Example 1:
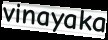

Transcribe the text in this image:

vinayaka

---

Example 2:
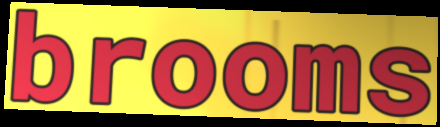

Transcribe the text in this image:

brooms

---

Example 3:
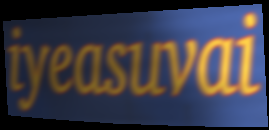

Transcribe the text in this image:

iyeasuvai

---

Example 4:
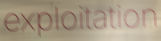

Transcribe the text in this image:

exploitation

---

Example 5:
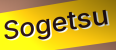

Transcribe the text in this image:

Sogetsu